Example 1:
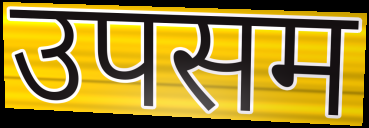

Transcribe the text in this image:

उपसम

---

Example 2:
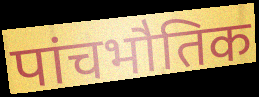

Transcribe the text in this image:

पांचभौतिक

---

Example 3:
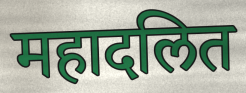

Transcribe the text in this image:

महादलित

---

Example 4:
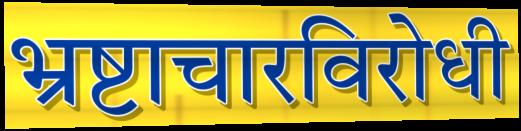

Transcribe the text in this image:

भ्रष्टाचारविरोधी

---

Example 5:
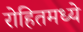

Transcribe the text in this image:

रोहितमध्ये